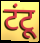
टंटू